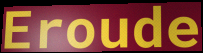
Eroude